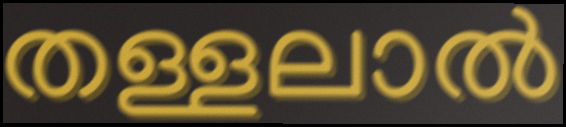
തള്ളലാൽ